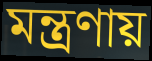
মন্ত্রণায়